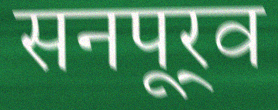
सनपूर्व